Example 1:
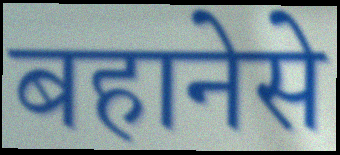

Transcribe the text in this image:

बहानेसे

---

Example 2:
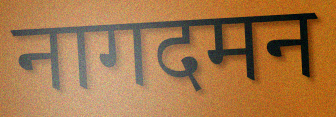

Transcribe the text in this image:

नागदमन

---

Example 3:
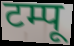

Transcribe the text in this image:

टम्पू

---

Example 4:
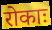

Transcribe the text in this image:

रोकाः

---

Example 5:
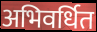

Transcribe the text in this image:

अभिवर्धित